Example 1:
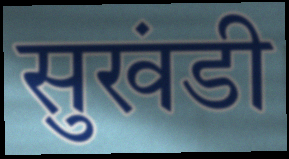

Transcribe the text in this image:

सुखंडी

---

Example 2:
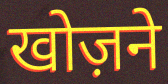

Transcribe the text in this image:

खोज़ने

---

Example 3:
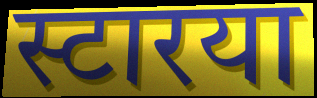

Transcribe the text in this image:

स्टारया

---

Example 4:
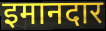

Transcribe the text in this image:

इमानदार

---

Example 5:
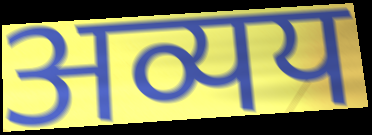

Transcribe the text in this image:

अव्यय